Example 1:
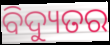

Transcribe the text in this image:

ବିଦ୍ୟୁତର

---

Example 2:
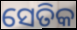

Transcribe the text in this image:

ସେତିକ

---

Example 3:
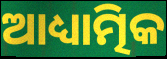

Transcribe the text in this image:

ଆଧ୍ୟାତ୍ମିକ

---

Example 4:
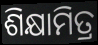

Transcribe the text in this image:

ଶିକ୍ଷାମିତ୍ର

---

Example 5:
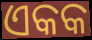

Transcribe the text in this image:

ଏକକ